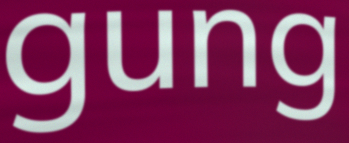
gung